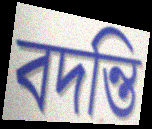
বদন্তি